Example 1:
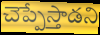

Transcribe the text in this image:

చెప్పేస్తాడని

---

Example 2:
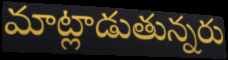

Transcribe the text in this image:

మాట్లాడుతున్నరు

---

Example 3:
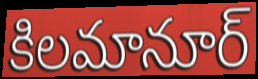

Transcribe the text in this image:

కిలమానూర్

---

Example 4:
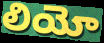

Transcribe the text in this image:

లియో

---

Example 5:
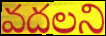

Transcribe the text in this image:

వదలని